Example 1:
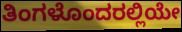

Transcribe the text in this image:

ತಿಂಗಳೊಂದರಲ್ಲಿಯೇ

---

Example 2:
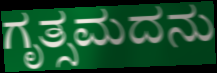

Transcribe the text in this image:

ಗೃತ್ಸಮದನು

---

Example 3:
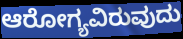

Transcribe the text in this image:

ಆರೋಗ್ಯವಿರುವುದು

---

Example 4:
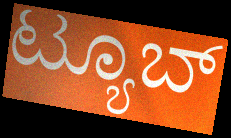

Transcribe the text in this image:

ಟ್ಯೂಬ್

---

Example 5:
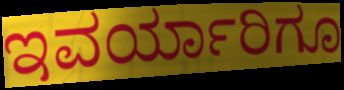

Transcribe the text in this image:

ಇವರ್ಯಾರಿಗೂ